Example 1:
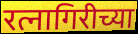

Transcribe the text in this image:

रत्नागिरीच्या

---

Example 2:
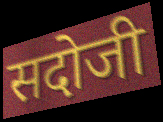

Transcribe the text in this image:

सदोजी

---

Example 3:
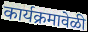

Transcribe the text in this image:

कार्यक्रमावेळी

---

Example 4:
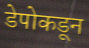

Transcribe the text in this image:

डेपोकडून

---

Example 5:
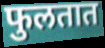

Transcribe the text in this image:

फुलतात